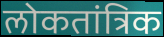
लोकतांत्रिक